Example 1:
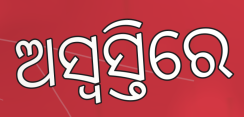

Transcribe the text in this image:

ଅସ୍ୱସ୍ତିରେ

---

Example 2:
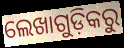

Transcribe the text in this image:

ଲେଖାଗୁଡ଼ିକରୁ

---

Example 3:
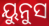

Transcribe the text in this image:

ୟୁନୁସ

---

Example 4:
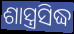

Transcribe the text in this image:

ଶାସ୍ତ୍ରସିଦ୍ଧ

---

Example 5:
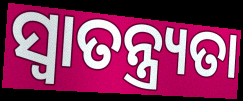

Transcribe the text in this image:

ସ୍ୱାତନ୍ତ୍ର୍ୟତା